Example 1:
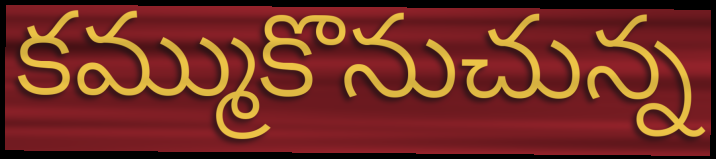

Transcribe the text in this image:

కమ్ముకొనుచున్న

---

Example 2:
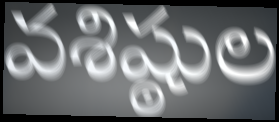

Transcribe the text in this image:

వశిష్ఠుల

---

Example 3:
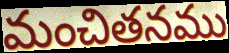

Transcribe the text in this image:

మంచితనము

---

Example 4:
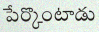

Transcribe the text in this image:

పేర్కొంటాడు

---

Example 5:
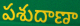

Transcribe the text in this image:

పశుదాణా